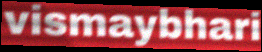
vismaybhari